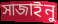
সাজাইনু